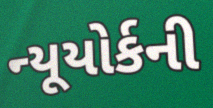
ન્યૂયોર્કની